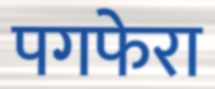
पगफेरा